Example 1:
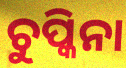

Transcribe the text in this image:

ଚୁପ୍କିନା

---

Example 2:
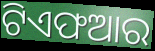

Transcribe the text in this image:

ଟିଏଫଆର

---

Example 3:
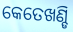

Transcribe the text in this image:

କେତେଖଣ୍ଡି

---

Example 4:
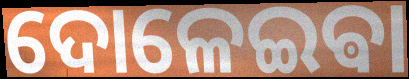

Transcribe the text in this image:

ଦୋଳେଇଵା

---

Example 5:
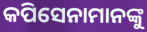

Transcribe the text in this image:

କପିସେନାମାନଙ୍କୁ